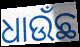
ଧାଉଁଛ